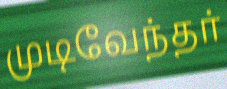
முடிவேந்தர்